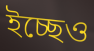
ইচ্ছেও